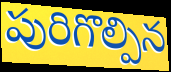
పురిగొల్పిన